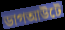
ডাগআউটে